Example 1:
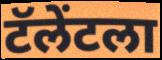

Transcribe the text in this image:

टॅलेंटला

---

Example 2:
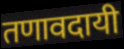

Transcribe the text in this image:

तणावदायी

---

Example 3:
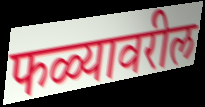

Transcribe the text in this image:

फळ्यावरील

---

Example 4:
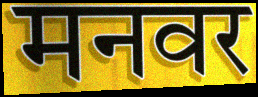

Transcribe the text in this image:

मनवर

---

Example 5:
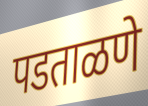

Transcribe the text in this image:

पडताळणे